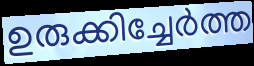
ഉരുക്കിച്ചേർത്ത